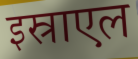
इस्राएल